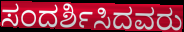
ಸಂದರ್ಶಿಸಿದವರು